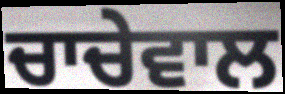
ਚਾਚੇਵਾਲ